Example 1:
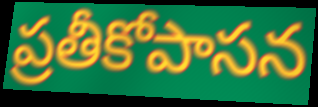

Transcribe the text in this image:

ప్రతీకోపాసన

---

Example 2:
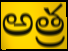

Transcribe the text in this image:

అత్ర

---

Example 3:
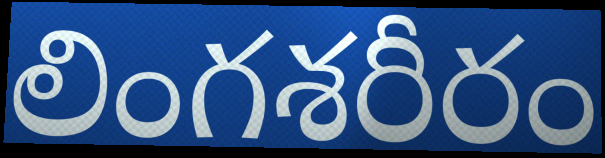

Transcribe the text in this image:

లింగశరీరం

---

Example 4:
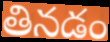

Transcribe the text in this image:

తినడం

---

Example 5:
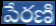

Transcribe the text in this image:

పేరణి